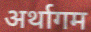
अर्थागम